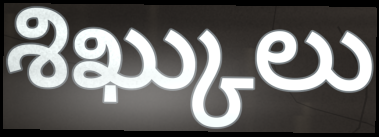
శిఖ్కులు